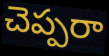
చెప్పరా